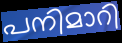
പനിമാറി